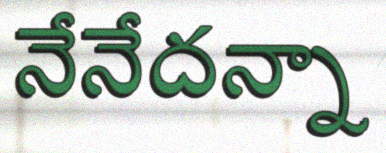
నేనేదన్నా